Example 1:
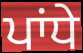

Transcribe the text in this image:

ਪਾਂਧੇ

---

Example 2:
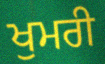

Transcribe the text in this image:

ਖੁਮਰੀ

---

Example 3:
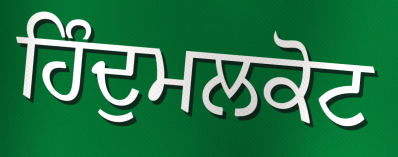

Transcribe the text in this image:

ਹਿੰਦੁਮਲਕੋਟ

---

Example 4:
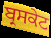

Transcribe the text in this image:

ਬ੍ਰਸਕੇਟ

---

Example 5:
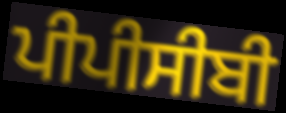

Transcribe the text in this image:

ਪੀਪੀਸੀਬੀ